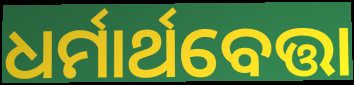
ଧର୍ମାର୍ଥବେତ୍ତା